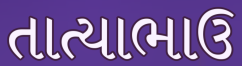
તાત્યાભાઉ